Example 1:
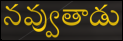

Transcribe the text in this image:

నవ్వుతాడు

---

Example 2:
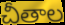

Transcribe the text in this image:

చీతాల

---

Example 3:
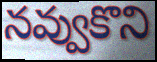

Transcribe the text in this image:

నవ్వుకొని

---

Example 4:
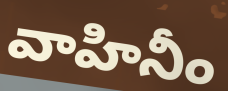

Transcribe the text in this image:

వాహినీం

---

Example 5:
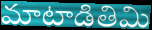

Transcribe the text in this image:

మాటాడితిమి